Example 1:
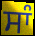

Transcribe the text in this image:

ਸਾੰ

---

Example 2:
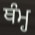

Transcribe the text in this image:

ਥੰਮ੍ਹ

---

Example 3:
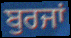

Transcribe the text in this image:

ਬੁਰਜਾਂ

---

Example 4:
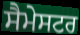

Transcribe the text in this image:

ਸੈਮੇਸਟਰ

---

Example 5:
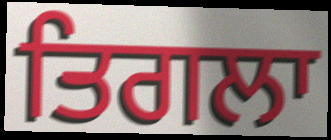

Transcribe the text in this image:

ਤਿਗਲਾ